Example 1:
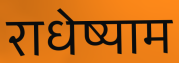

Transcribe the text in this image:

राधेष्याम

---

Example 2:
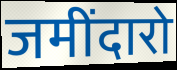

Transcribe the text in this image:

जमींदारो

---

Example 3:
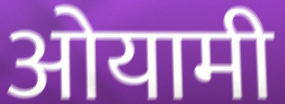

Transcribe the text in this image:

ओयामी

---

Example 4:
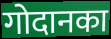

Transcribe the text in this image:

गोदानका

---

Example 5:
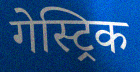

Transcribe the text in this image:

गेस्ट्रिक